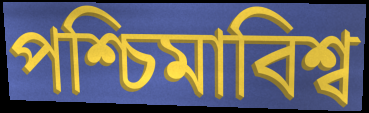
পশ্চিমাবিশ্ব